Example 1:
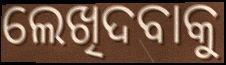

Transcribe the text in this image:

ଲେଖିଦବାକୁ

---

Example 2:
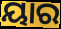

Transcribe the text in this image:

ୟାର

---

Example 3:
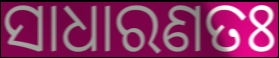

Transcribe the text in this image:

ସାଧାରଣତଃ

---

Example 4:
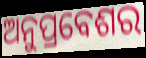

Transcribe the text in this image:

ଅନୁପ୍ରବେଶର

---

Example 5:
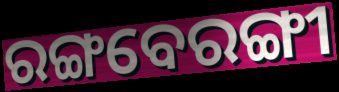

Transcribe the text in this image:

ରଙ୍ଗବେରଙ୍ଗୀ